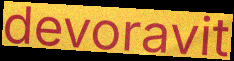
devoravit